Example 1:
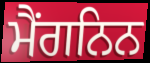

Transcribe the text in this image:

ਮੈਂਗਨਿਨ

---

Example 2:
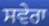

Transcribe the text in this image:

ਸਵੇਰਾ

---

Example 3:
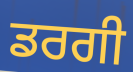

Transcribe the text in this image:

ਡਰਗੀ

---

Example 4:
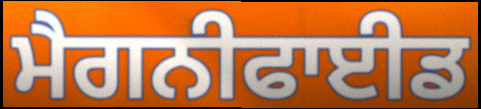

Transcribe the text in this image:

ਮੈਗਨੀਫਾਈਡ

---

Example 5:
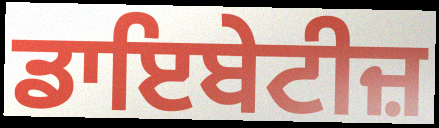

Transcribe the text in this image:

ਡਾਇਬੇਟੀਜ਼